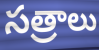
సత్రాలు